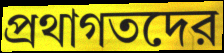
প্রথাগতদের